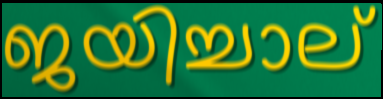
ജയിച്ചാല്